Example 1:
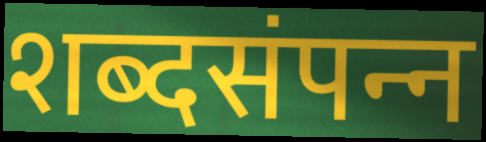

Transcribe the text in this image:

शब्दसंपन्न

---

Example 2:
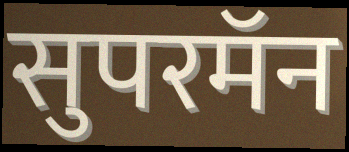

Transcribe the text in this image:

सुपरमॅन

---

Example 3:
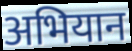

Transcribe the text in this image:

अभियान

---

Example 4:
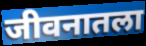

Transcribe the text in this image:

जीवनातला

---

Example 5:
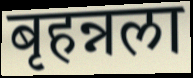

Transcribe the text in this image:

बृहन्नला